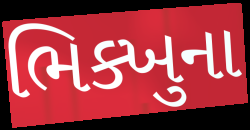
ભિક્ખુના